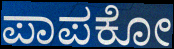
ಪಾಪಕೋ